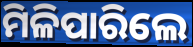
ମିଳିପାରିଲେ